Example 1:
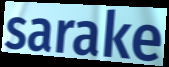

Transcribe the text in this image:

sarake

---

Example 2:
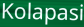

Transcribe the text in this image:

Kolapasi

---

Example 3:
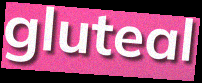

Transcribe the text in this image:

gluteal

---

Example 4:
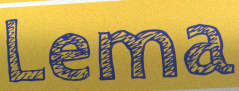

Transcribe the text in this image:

Lema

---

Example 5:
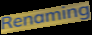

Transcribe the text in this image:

Renaming